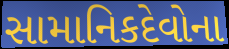
સામાનિકદેવોના